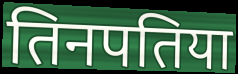
तिनपतिया